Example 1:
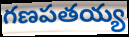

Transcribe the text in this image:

గణపతయ్య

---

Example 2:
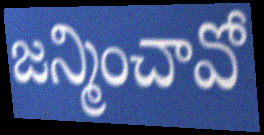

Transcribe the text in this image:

జన్మించావో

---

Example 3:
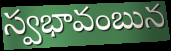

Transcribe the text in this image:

స్వభావంబున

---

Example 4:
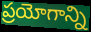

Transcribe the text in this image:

ప్రయోగాన్ని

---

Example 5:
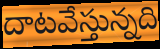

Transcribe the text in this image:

దాటవేస్తున్నది